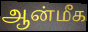
ஆன்மீக